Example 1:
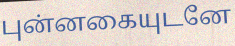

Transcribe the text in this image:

புன்னகையுடனே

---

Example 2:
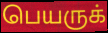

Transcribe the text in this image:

பெயருக்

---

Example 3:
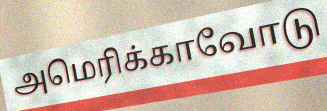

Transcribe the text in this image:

அமெரிக்காவோடு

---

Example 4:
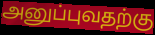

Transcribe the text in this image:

அனுப்புவதற்கு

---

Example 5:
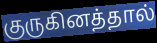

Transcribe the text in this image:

குருகினத்தால்